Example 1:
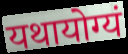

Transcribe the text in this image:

यथायोग्यं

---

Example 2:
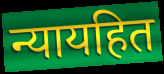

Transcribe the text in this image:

न्यायहित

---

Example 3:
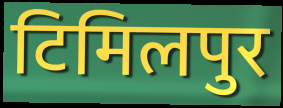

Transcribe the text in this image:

टिमिलपुर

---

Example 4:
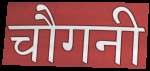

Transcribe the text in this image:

चौगनी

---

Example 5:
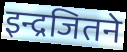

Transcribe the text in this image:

इन्द्रजितने